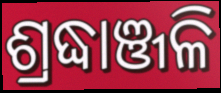
ଶ୍ରଦ୍ଧାଞ୍ଜଳି